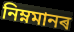
নিম্নমানৰ